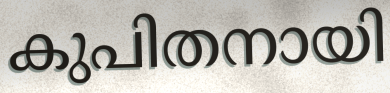
കുപിതനായി